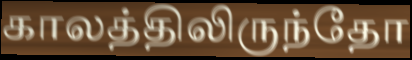
காலத்திலிருந்தோ